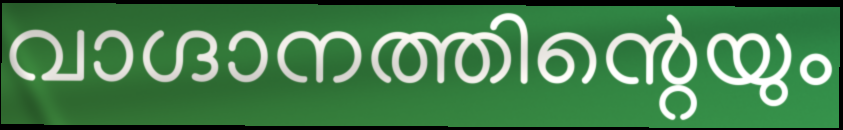
വാഗ്ദാനത്തിന്റെയും